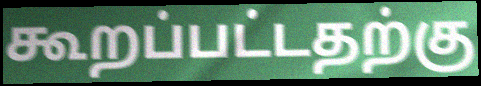
கூறப்பட்டதற்கு